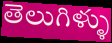
తెలుగిళ్ళు